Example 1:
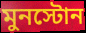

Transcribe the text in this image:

মুনস্টোন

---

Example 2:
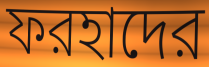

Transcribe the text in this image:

ফরহাদের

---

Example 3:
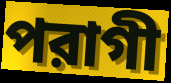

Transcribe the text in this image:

পরাগী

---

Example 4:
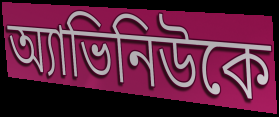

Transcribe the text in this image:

অ্যাভিনিউকে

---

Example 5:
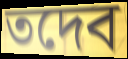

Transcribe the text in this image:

তদেব